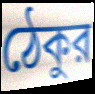
ঠেকুর